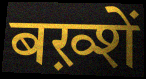
बख़्शें